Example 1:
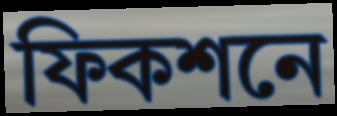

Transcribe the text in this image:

ফিকশনে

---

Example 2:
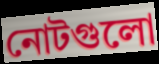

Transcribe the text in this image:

নোটগুলো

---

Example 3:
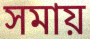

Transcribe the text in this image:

সমায়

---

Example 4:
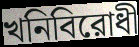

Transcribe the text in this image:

খনিবিরোধী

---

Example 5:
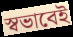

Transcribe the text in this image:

স্বভাবেই